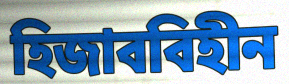
হিজাববিহীন